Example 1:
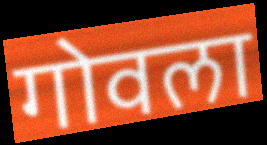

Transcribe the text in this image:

गोवला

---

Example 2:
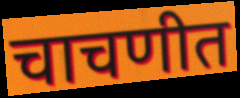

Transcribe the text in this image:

चाचणीत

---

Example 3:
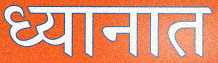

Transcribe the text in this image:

ध्यानात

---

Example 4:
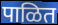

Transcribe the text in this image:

पाळित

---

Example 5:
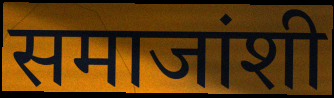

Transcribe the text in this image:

समाजांशी